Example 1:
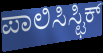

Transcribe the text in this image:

ಪಾಲಿಸಿಸ್ಟಿಕ್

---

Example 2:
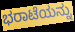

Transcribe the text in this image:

ಭರಾಟೆಯನ್ನು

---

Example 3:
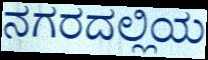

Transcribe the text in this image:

ನಗರದಲ್ಲಿಯ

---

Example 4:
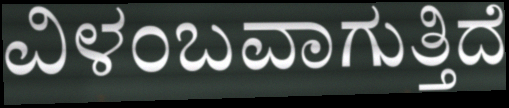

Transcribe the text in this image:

ವಿಳಂಬವಾಗುತ್ತಿದೆ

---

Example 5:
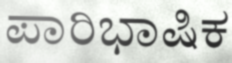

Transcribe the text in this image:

ಪಾರಿಭಾಷಿಕ